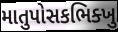
માતુપોસકભિક્ખુ